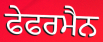
ਫੇਫਰਮੈਨ